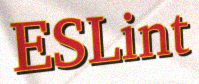
ESLint